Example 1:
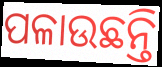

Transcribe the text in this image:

ପଳାଉଛନ୍ତି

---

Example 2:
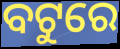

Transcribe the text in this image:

ବଟୁରେ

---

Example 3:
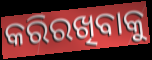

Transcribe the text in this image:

କରିରଖିବାକୁ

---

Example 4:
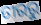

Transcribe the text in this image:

ତୀରରୁ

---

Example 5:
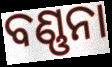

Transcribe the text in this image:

ବଣ୍ଣନା